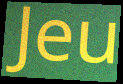
Jeu